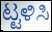
ಟ್ಟಳಿಸಿ